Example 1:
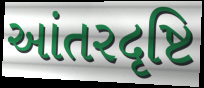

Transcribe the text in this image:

આંતરદૃષ્ટિ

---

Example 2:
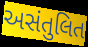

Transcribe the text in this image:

અસંતુલિત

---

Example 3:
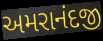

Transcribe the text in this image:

અમરાનંદજી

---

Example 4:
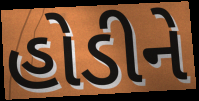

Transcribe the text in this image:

હોડીને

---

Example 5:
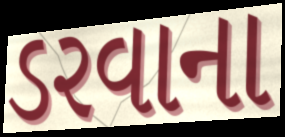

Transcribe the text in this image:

ડરવાના